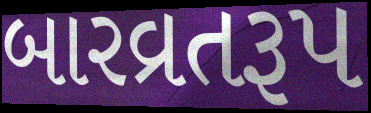
બારવ્રતરૂપ